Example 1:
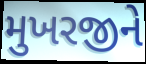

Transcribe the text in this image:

મુખરજીને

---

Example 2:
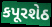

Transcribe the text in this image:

કપૂરશેઠ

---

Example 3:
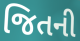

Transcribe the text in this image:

જિતની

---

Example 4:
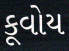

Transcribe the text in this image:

કૂવોય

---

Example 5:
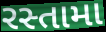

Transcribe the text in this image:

રસ્તામા